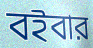
বইবার